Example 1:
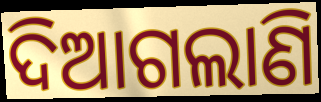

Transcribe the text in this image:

ଦିଆଗଲାଣି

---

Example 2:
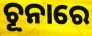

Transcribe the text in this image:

ଚୂନାରେ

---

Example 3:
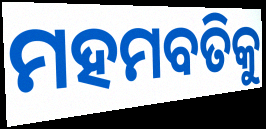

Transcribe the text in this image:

ମହମବତିକୁ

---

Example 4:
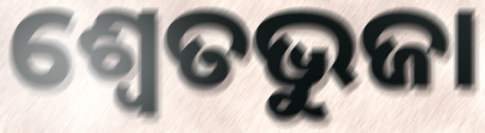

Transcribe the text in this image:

ଶ୍ଵେତଭୁଜା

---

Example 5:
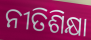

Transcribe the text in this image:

ନୀତିଶିକ୍ଷା